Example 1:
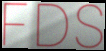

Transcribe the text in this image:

FDS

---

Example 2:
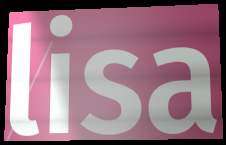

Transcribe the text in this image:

lisa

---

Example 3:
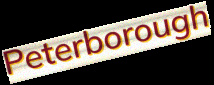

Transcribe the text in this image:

Peterborough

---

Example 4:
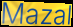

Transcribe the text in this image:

Mazal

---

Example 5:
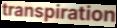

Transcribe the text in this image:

transpiration